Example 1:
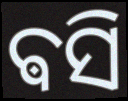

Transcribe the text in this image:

ଵସି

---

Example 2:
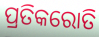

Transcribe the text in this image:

ପ୍ରତିକରୋତି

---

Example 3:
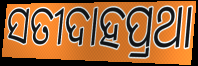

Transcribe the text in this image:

ସତୀଦାହପ୍ରଥା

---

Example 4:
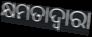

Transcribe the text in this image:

କ୍ଷମତାଦ୍ୱାରା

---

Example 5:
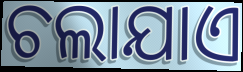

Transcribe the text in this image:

ଚଲାଯାଏ